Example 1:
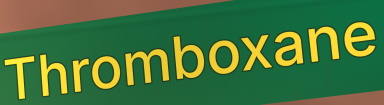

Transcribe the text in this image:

Thromboxane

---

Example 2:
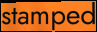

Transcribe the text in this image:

stamped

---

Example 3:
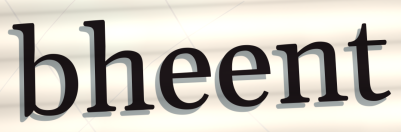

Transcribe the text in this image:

bheent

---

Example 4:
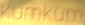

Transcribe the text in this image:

kumkum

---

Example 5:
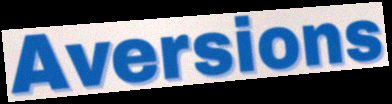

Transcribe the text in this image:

Aversions